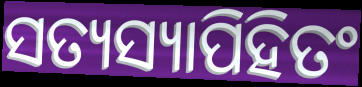
ସତ୍ୟସ୍ୟାପିହିତଂ